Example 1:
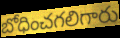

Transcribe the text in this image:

బోధించగలిగారు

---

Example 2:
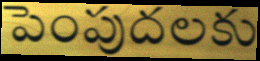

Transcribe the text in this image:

పెంపుదలకు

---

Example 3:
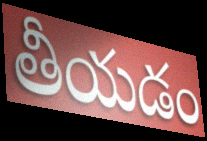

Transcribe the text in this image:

తీయడం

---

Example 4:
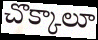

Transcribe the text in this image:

చొక్కాలూ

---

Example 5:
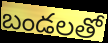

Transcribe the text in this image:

బండలతో